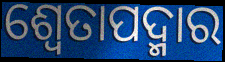
ଶ୍ଵେତାପଦ୍ମାର